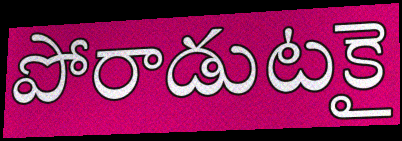
పోరాడుటకై